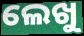
ଲେଖୁ